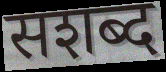
सशब्द